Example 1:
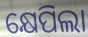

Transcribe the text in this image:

କ୍ଷେପିଲା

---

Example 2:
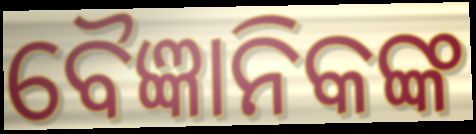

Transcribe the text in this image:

ବୈଜ୍ଞାନିକଙ୍କ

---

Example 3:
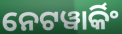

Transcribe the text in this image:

ନେଟୱାର୍କିଂ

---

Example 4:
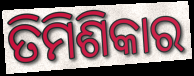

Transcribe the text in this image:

ତିମିଶିକାର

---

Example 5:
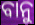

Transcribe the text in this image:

ବାନୁ